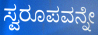
ಸ್ವರೂಪವನ್ನೇ